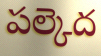
పల్కెద